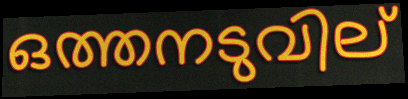
ഒത്തനടുവില്